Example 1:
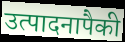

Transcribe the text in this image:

उत्पादनापैकी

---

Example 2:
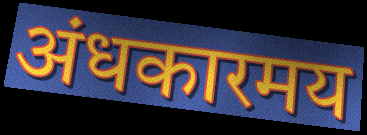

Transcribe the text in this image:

अंधकारमय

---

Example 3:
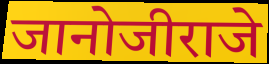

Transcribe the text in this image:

जानोजीराजे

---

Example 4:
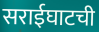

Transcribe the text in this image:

सराईघाटची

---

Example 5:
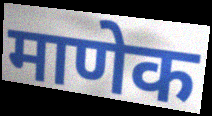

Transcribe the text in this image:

माणेक